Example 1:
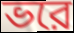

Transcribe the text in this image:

ভরে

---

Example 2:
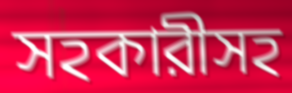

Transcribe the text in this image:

সহকারীসহ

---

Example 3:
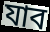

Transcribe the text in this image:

যাব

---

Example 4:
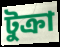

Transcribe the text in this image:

টুক্রা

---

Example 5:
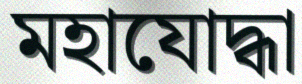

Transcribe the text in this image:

মহাযোদ্ধা